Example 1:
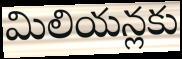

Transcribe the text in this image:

మిలియన్లకు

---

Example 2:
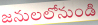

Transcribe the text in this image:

జనులలోనుండి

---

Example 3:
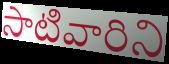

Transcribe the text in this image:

సాటివారిని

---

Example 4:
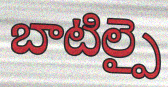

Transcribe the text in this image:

బాటిల్పై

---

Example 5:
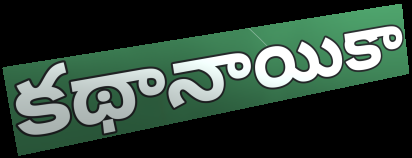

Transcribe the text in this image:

కథానాయికా